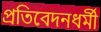
প্রতিবেদনধর্মী